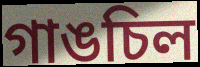
গাঙচিল